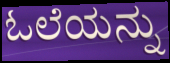
ಓಲೆಯನ್ನು